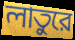
লাতুরে